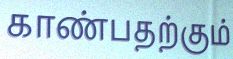
காண்பதற்கும்